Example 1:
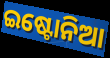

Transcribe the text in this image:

ଇଷ୍ଟୋନିଆ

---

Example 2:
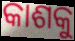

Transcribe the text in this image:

କାଶକୁ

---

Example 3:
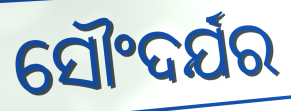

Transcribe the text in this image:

ସୌଂଦର୍ଯର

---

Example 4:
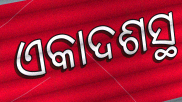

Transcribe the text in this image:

ଏକାଦଶସ୍ଥ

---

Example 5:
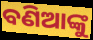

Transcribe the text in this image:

ବଣିଆଙ୍କୁ